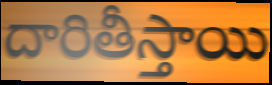
దారితీస్తాయి